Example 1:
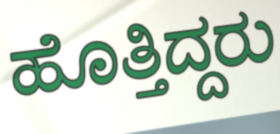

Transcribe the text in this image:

ಹೊತ್ತಿದ್ದರು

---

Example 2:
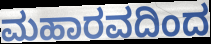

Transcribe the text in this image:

ಮಹಾರವದಿಂದ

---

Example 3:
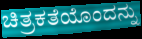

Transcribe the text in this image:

ಚಿತ್ರಕತೆಯೊಂದನ್ನು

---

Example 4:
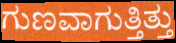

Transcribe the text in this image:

ಗುಣವಾಗುತ್ತಿತ್ತು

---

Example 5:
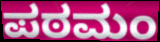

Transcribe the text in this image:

ಪಠಮಂ